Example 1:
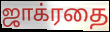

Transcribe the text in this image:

ஜாக்ரதை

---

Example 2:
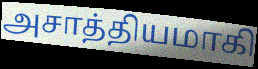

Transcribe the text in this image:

அசாத்தியமாகி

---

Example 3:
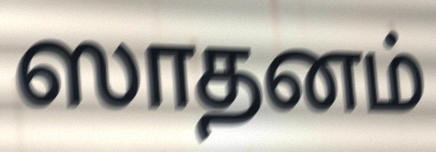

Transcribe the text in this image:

ஸாதனம்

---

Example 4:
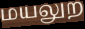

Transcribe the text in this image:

மயலுற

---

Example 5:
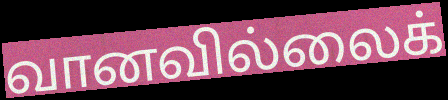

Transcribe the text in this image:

வானவில்லைக்